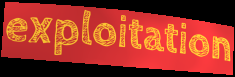
exploitation